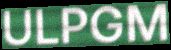
ULPGM